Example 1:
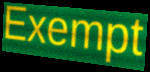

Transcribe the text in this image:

Exempt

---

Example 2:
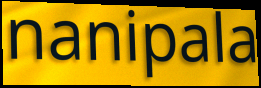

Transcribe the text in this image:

nanipala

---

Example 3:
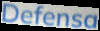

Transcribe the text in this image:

Defensa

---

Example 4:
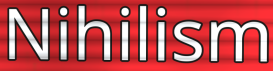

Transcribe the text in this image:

Nihilism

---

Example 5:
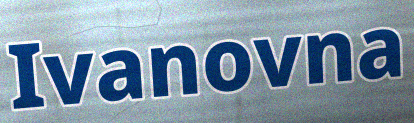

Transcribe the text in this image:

Ivanovna